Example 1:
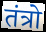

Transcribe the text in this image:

तंत्रो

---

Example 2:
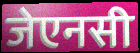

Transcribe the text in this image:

जेएनसी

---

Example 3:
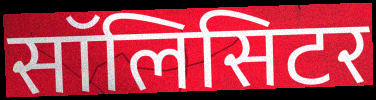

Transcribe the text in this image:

सॉलिसिटर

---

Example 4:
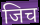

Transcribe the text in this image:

जिच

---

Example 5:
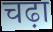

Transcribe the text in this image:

चढ़ा